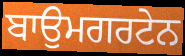
ਬਾਉਮਗਰਟੇਨ